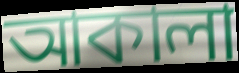
আকালা